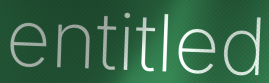
entitled